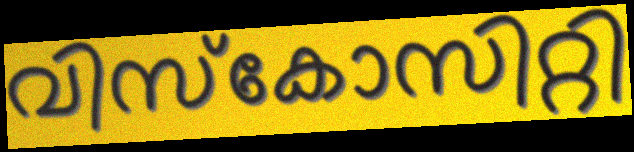
വിസ്കോസിറ്റി